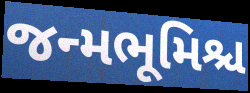
જન્મભૂમિશ્ચ